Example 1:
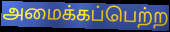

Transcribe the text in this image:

அமைக்கப்பெற்ற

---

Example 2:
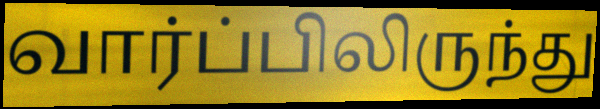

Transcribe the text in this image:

வார்ப்பிலிருந்து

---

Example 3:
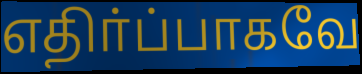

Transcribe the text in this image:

எதிர்ப்பாகவே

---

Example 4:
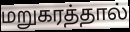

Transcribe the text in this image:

மறுகரத்தால்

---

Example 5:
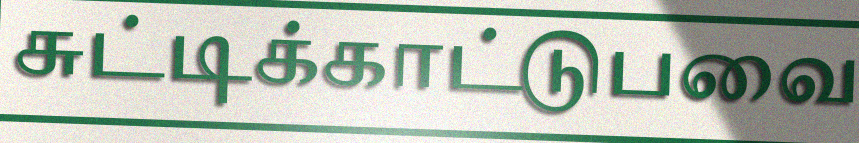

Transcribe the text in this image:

சுட்டிக்காட்டுபவை